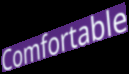
Comfortable